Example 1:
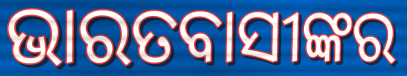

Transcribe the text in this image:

ଭାରତବାସୀଙ୍କର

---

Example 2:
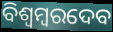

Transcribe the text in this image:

ବିଶ୍ୱମ୍ବରଦେବ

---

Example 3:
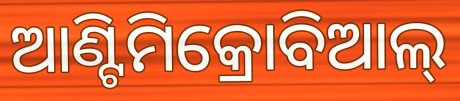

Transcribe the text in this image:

ଆଣ୍ଟିମିକ୍ରୋବିଆଲ୍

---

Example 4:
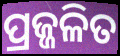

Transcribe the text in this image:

ପ୍ରଜ୍ଜଳିତ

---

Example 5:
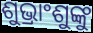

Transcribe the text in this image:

ଶୁଭ୍ରାଂଶୁଙ୍କୁ